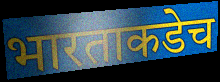
भारताकडेच